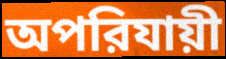
অপরিযায়ী